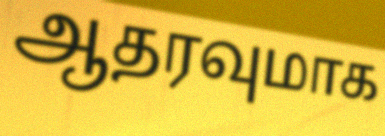
ஆதரவுமாக